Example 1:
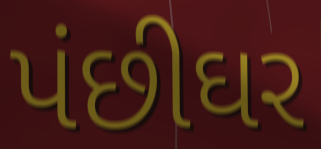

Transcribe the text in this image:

પંછીઘર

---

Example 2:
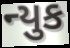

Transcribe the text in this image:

ન્યુક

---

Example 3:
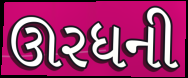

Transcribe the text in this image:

ઊરધની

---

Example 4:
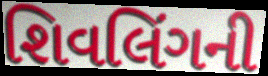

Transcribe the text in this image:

શિવલિંગની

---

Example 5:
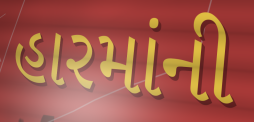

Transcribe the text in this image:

હારમાંની